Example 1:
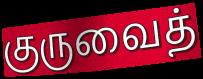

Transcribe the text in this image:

குருவைத்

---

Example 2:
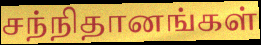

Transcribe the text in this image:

சந்நிதானங்கள்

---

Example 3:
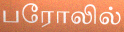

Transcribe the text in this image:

பரோலில்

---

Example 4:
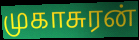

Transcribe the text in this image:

முகாசுரன்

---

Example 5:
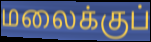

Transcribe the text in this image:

மலைக்குப்